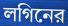
লগিনের